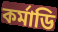
কর্মাডি